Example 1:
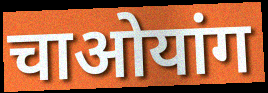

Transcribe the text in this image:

चाओयांग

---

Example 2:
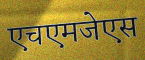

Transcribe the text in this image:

एचएमजेएस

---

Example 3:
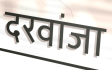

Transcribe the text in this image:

दरवांजा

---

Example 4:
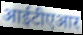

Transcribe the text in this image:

आईटीएआर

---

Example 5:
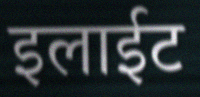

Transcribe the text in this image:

इलाईट